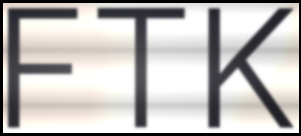
FTK